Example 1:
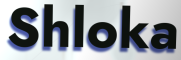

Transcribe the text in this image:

Shloka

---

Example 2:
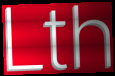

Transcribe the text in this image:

Lth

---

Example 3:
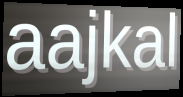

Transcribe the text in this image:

aajkal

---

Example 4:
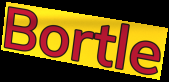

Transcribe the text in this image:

Bortle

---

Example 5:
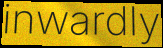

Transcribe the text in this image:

inwardly